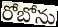
రోబోను